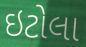
ઇટોલા